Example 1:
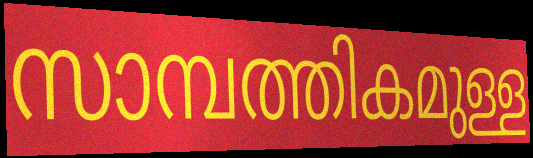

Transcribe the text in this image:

സാമ്പത്തികമുള്ള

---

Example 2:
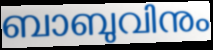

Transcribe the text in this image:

ബാബുവിനും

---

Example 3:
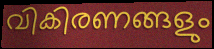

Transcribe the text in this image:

വികിരണങ്ങളും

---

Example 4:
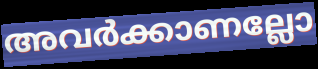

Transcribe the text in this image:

അവർക്കാണല്ലോ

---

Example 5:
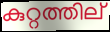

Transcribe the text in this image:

കുറ്റത്തില്